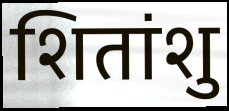
शितांशु